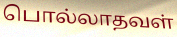
பொல்லாதவள்